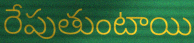
రేపుతుంటాయి